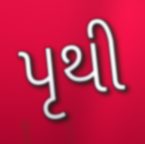
પૃથી